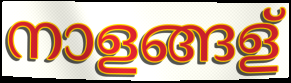
നാളങ്ങള്